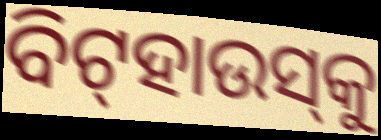
ବିଟ୍‌ହାଉସ୍‌କୁ